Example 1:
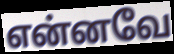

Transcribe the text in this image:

என்னவே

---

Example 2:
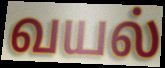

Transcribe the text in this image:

வயல்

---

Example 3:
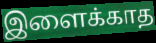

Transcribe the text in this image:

இளைக்காத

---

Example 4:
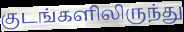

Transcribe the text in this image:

குடங்களிலிருந்து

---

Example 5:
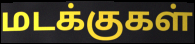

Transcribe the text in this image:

மடக்குகள்